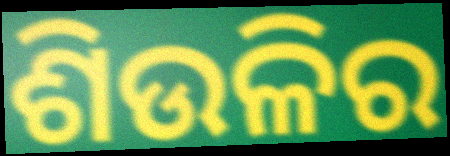
ଶିଉଳିର